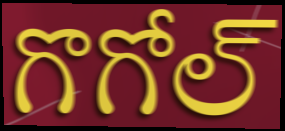
గొగోల్